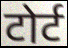
टोर्ट